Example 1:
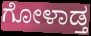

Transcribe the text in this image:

ಗೋಳಾಡ್ತ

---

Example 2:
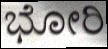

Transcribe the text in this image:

ಭೋರಿ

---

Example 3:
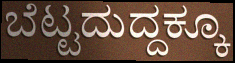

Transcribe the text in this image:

ಬೆಟ್ಟದುದ್ದಕ್ಕೂ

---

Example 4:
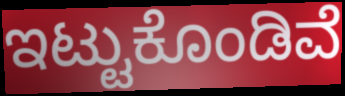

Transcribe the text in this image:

ಇಟ್ಟುಕೊಂಡಿವೆ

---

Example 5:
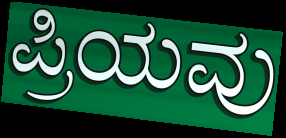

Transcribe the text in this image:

ಪ್ರಿಯವು